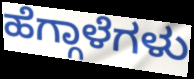
ಹೆಗ್ಗಾಳೆಗಳು